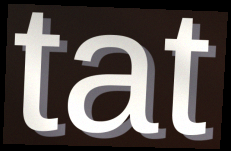
tat